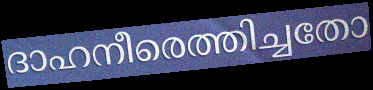
ദാഹനീരെത്തിച്ചതോ